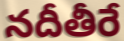
నదీతీరే